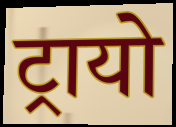
ट्रायो